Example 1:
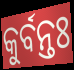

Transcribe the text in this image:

କୁର୍ବନ୍ତଃ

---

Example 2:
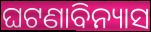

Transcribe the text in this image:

ଘଟଣାବିନ୍ୟାସ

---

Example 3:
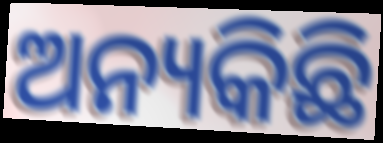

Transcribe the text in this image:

ଅନ୍ୟକିଛି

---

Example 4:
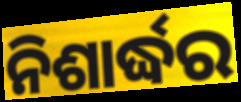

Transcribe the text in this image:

ନିଶାର୍ଦ୍ଧର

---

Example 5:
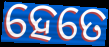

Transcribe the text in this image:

ହେତେ